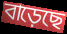
বাড়েছে